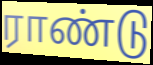
ராண்டு